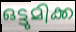
ഒട്ടുമിക്ക